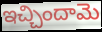
ఇచ్చిందామె